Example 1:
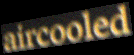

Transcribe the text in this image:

aircooled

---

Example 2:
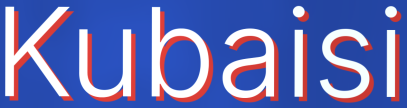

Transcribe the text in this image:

Kubaisi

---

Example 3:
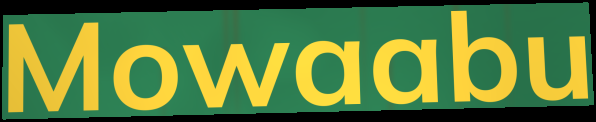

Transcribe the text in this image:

Mowaabu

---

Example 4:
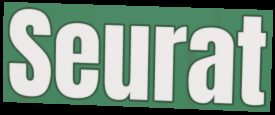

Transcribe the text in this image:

Seurat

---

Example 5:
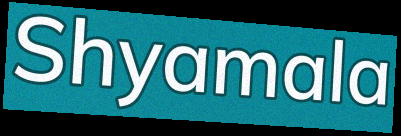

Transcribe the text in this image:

Shyamala